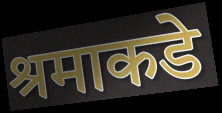
श्रमाकडे